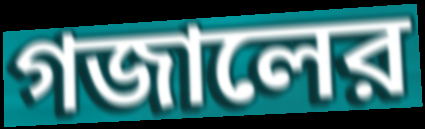
গজালের